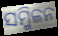
ସମ୍ମିଳନ